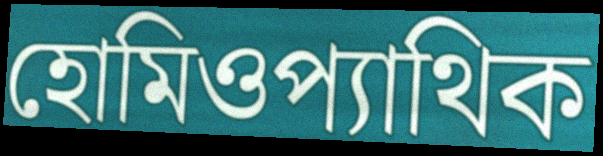
হোমিওপ্যাথিক